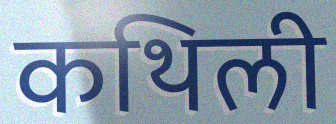
कथिली